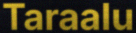
Taraalu